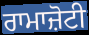
ਰਾਮਾਜ਼ੋਟੀ